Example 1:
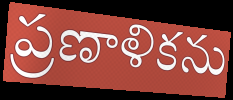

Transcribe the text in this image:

ప్రణాళికను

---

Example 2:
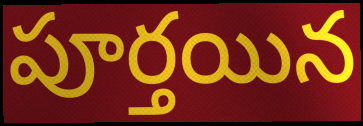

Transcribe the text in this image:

పూర్తయిన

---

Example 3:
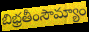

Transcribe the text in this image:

బిభ్రతీంసౌమ్యాం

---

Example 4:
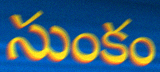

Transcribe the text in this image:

సుంకం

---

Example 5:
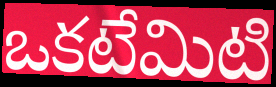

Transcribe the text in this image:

ఒకటేమిటి